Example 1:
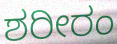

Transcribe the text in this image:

ಶರೀರಂ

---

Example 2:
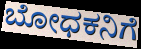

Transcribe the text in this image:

ಬೋಧಕನಿಗೆ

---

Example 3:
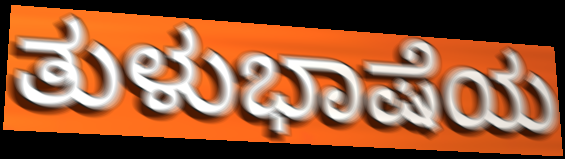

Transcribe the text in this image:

ತುಳುಭಾಷೆಯ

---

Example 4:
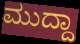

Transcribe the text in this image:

ಮುದ್ದಾ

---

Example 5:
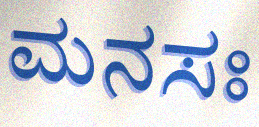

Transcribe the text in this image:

ಮನಸಃ